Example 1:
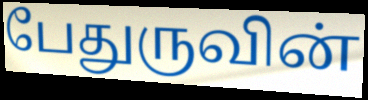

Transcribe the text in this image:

பேதுருவின்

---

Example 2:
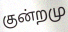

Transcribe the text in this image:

குன்றமு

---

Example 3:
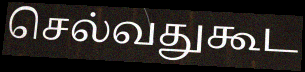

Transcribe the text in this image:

செல்வதுகூட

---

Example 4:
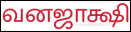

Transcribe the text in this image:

வனஜாக்ஷி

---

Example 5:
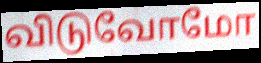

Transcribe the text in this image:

விடுவோமோ